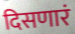
दिसणारं